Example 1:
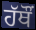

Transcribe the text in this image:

ਹੱਥੌਂ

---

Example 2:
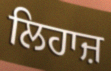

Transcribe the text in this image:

ਲਿਹਾਜ਼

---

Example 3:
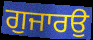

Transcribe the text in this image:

ਗੁਜਾਰਉ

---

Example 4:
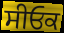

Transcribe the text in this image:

ਸੀਓਕ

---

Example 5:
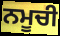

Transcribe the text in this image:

ਨਮੂਚੀ